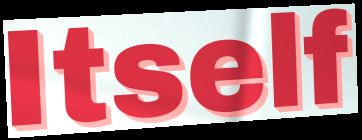
Itself